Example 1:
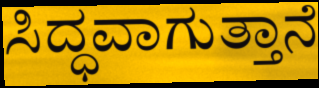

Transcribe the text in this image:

ಸಿದ್ಧವಾಗುತ್ತಾನೆ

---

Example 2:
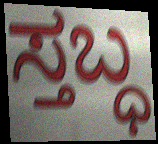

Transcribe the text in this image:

ಸ್ತಬ್ಧ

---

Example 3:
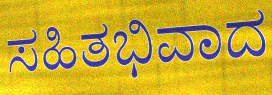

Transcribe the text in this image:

ಸಹಿತಭಿವಾದ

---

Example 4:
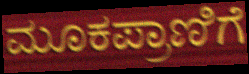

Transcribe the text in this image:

ಮೂಕಪ್ರಾಣಿಗೆ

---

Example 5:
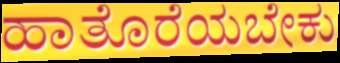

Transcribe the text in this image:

ಹಾತೊರೆಯಬೇಕು